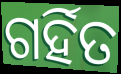
ଗର୍ହିତ